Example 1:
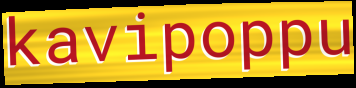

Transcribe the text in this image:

kavipoppu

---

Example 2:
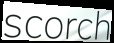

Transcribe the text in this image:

scorch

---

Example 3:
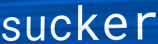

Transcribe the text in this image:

sucker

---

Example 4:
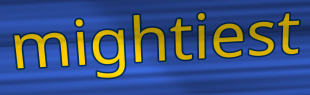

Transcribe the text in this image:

mightiest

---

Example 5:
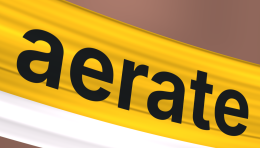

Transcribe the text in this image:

aerate